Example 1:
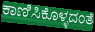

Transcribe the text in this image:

ಕಾಣಿಸಿಕೊಳ್ಳದಂತೆ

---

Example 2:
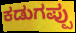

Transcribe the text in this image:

ಕಡುಗಪ್ಪು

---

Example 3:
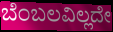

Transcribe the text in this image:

ಬೆಂಬಲವಿಲ್ಲದೇ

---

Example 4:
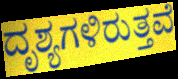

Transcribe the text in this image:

ದೃಶ್ಯಗಳಿರುತ್ತವೆ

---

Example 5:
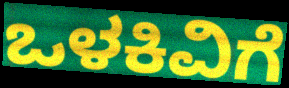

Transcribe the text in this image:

ಒಳಕಿವಿಗೆ